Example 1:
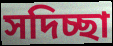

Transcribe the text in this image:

সদিচ্ছা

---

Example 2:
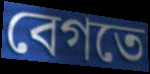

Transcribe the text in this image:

বেগতে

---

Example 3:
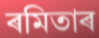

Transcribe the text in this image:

ৰমিতাৰ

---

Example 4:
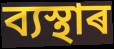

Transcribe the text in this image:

ব্যস্থাৰ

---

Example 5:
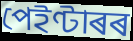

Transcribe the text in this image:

পেইণ্টাৰৰ